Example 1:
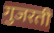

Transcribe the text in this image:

गुजरती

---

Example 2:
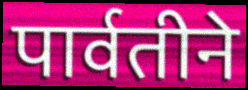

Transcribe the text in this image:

पार्वतीने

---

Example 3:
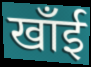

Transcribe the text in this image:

खाँई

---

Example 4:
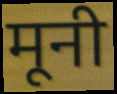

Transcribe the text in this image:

मूनी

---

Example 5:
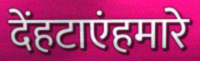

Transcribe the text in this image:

देंहटाएंहमारे